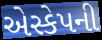
એસ્કેપની